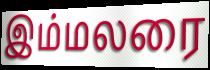
இம்மலரை